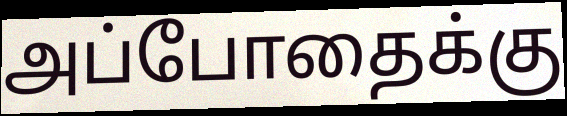
அப்போதைக்கு